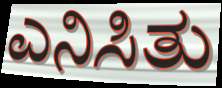
ಎನಿಸಿತು